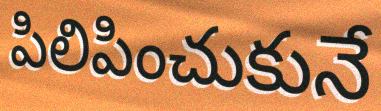
పిలిపించుకునే